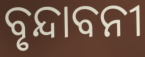
ବୃନ୍ଦାବନୀ